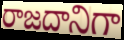
రాజదానిగా